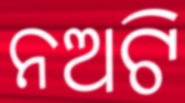
ନଅଟି